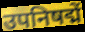
उपनिषद्में